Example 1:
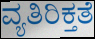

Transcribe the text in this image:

ವ್ಯತಿರಿಕ್ತತೆ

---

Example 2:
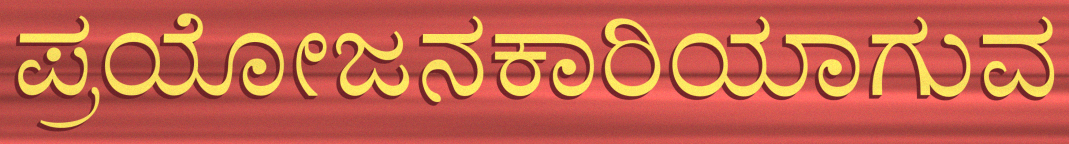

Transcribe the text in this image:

ಪ್ರಯೋಜನಕಾರಿಯಾಗುವ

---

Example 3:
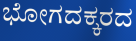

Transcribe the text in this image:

ಭೋಗದಕ್ಕರದ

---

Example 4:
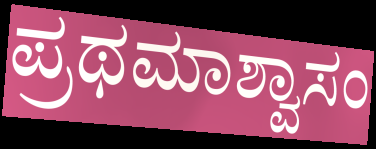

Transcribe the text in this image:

ಪ್ರಥಮಾಶ್ವಾಸಂ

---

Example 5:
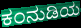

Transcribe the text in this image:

ಕಂನುಡಿಯ